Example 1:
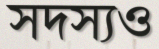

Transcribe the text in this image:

সদস্যও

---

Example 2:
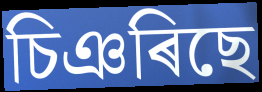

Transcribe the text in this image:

চিঞৰিছে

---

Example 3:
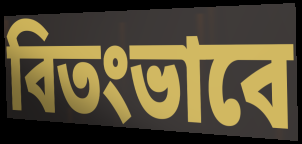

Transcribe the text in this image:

বিতংভাবে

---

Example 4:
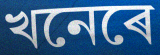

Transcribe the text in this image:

খনেৰে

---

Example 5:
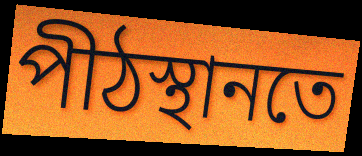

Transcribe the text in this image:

পীঠস্থানতে